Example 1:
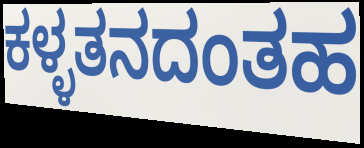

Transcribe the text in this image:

ಕಳ್ಳತನದಂತಹ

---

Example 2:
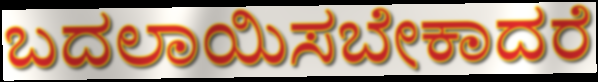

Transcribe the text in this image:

ಬದಲಾಯಿಸಬೇಕಾದರೆ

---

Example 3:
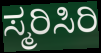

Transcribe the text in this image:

ಸ್ಮರಿಸಿರಿ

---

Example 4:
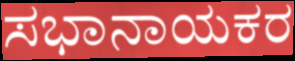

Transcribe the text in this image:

ಸಭಾನಾಯಕರ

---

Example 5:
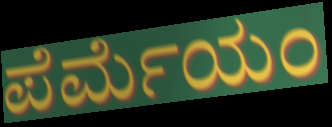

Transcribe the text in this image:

ಪೆರ್ಮೆಯಂ